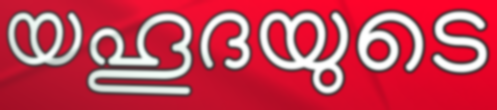
യഹൂദയുടെ